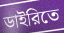
ডাইরিতে